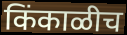
किंकाळीच